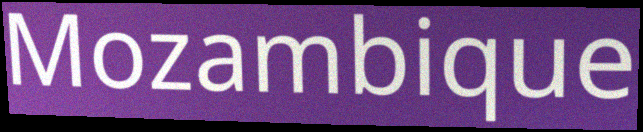
Mozambique